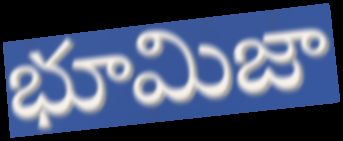
భూమిజా